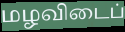
மழவிடைப்